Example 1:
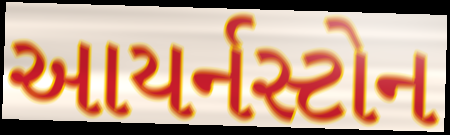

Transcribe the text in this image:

આયર્નસ્ટોન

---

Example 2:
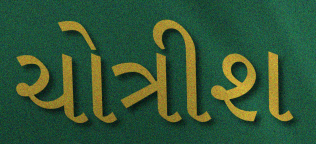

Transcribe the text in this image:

ચોત્રીશ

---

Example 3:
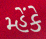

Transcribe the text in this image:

મ્હેંકે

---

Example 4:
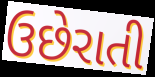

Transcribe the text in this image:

ઉછેરાતી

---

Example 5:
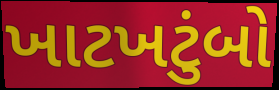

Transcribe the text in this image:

ખાટખટુંબો